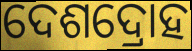
ଦେଶଦ୍ରୋହ